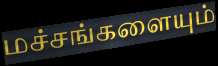
மச்சங்களையும்